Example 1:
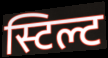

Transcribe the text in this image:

स्टिल्ट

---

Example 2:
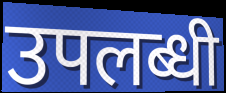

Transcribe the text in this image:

उपलब्धी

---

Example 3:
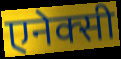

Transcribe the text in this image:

एनेक्‍सी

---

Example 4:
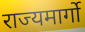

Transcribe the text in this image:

राज्यमार्गो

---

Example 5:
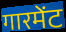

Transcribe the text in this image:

गारमेंट